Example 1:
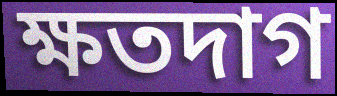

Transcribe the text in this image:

ক্ষতদাগ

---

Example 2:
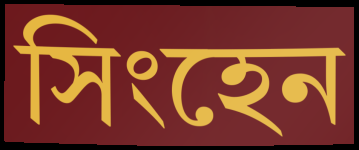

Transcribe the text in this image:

সিংহেন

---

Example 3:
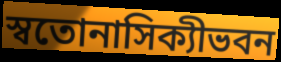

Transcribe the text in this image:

স্বতোনাসিক্যীভবন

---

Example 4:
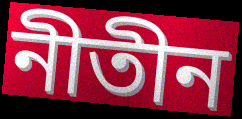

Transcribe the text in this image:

নীতীন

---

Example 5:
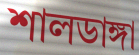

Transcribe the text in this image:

শালডাঙ্গা